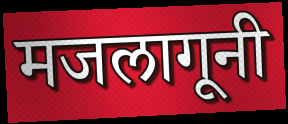
मजलागूनी